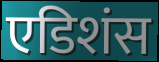
एडिशंस